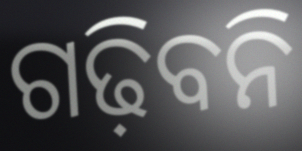
ଗଢ଼ିବନି